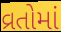
વ્રતોમાં